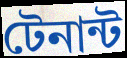
টেনান্ট